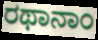
ರಥಾನಾಂ